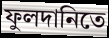
ফুলদানিতে